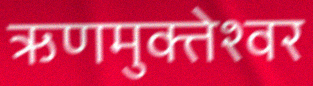
ऋणमुक्तेश्वर